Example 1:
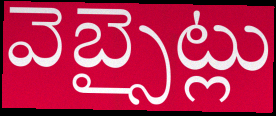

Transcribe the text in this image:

వెబ్సైట్లు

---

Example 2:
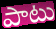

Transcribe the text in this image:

పాటు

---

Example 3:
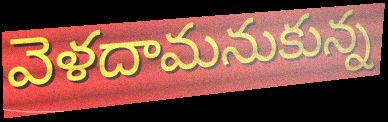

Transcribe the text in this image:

వెళదామనుకున్న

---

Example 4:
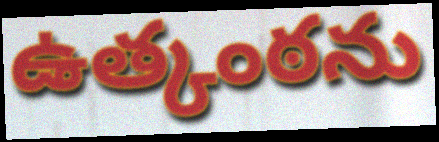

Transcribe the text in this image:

ఉత్కంఠను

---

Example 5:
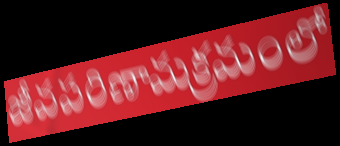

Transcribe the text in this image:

జీవపరిణామక్రమంలో